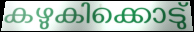
കഴുകിക്കൊടു്